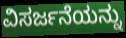
ವಿಸರ್ಜನೆಯನ್ನು